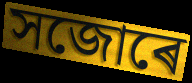
সজোৰে